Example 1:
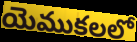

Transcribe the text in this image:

యెముకలలో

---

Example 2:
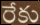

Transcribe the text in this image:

రేకు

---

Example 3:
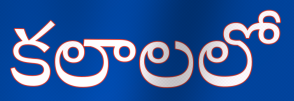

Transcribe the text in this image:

కలాలలో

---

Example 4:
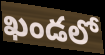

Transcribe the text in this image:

ఖండలో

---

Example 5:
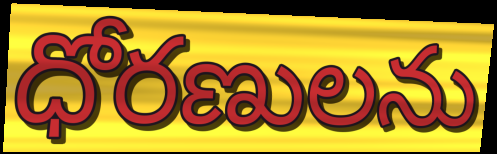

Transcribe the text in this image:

ధోరణులను